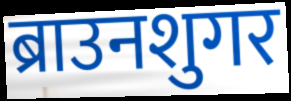
ब्राउनशुगर